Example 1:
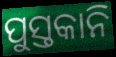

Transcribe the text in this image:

ପୁସ୍ତକାନି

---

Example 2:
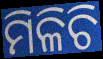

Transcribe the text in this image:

ମିଳିଚି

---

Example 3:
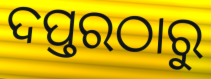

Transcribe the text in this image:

ଦପ୍ତରଠାରୁ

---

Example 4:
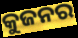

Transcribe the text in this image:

କୁଜନର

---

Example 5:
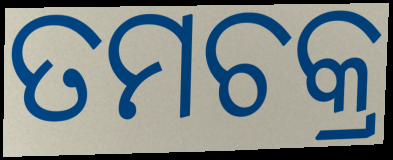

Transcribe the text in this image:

ତମଚକ୍ର